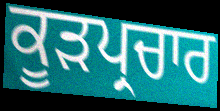
ਕੂੜਪ੍ਰਚਾਰ